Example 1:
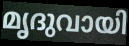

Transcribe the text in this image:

മൃദുവായി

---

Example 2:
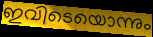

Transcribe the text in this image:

ഇവിടെയൊന്നും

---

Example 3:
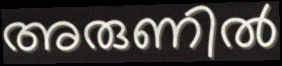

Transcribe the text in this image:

അരുണിൽ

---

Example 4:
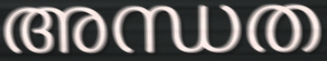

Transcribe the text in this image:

അന്ധത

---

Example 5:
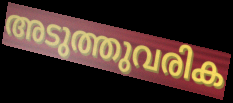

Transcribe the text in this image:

അടുത്തുവരിക